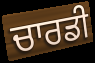
ਚਾਰਡੀ